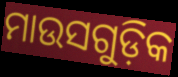
ମାଉସଗୁଡ଼ିକ